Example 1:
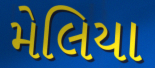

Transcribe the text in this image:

મેલિયા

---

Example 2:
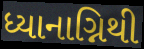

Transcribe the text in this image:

ધ્યાનાગ્નિથી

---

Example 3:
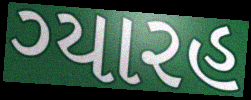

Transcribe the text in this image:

ગ્યારહ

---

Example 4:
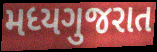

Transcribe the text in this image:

મધ્યગુજરાત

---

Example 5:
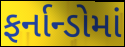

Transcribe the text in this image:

ફર્નાન્ડોમાં